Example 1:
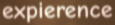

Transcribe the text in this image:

expierence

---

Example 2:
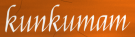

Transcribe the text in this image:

kunkumam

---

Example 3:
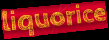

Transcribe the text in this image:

liquorice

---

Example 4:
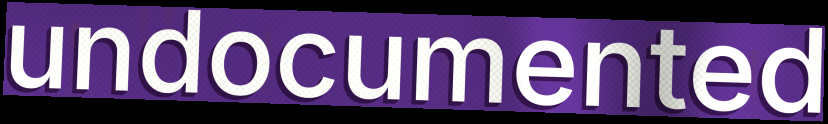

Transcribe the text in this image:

undocumented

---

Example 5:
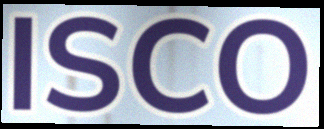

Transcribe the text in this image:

ISCO